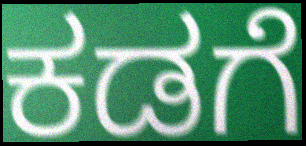
ಕಡಗೆ